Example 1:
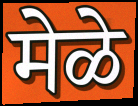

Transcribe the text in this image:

मेळे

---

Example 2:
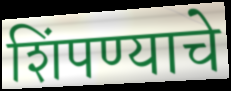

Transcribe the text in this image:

शिंपण्याचे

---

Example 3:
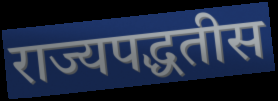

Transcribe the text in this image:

राज्यपद्धतीस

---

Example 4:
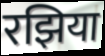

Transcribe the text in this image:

रझिया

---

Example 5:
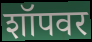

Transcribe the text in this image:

शॉपवर